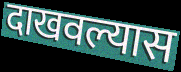
दाखवल्यास